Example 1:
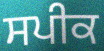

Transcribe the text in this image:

ਸਪੀਕ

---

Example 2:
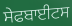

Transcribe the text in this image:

ਸੇਫਬਾਈਟਸ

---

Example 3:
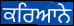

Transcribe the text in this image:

ਕਰਿਆਨੇ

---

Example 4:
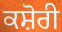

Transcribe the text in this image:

ਕਸ਼ੋਰੀ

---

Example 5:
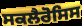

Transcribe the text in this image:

ਸਕਲੈਰੋਸਿਸ